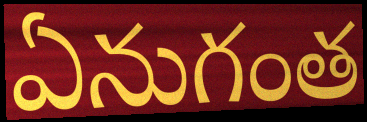
ఏనుగంత